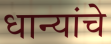
धान्यांचे